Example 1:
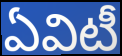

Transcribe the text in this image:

ఏవిటీ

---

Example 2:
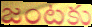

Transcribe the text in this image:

జంటకు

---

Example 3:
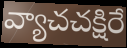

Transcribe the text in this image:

వ్యాచచక్షిరే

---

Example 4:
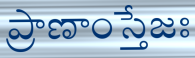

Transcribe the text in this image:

ప్రాణాంస్తేజః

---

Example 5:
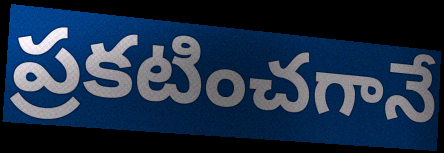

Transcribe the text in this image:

ప్రకటించగానే